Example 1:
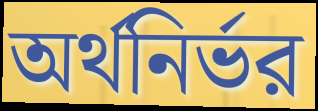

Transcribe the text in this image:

অর্থনির্ভর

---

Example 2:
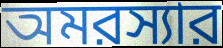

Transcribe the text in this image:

অমরস্যার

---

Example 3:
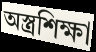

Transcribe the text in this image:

অস্ত্রশিক্ষা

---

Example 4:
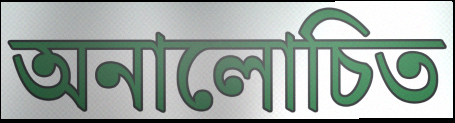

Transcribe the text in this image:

অনালোচিত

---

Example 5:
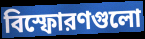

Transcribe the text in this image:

বিস্ফোরণগুলো